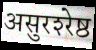
असुरश्रेष्ठ